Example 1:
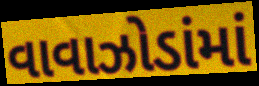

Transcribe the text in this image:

વાવાઝોડાંમાં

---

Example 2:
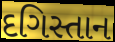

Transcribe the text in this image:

દગિસ્તાન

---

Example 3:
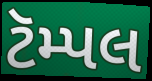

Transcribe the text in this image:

ટૅમ્પલ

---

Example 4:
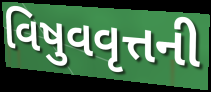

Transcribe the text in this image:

વિષુવવૃત્તની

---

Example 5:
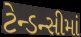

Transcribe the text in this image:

ટેન્ડન્સીમાં